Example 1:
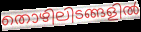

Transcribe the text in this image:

തൊഴിലിടങ്ങളിൽ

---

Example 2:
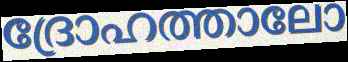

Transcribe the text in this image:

ദ്രോഹത്താലോ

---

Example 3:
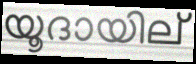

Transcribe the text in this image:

യൂദായില്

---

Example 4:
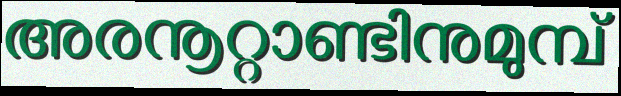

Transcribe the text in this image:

അരനൂറ്റാണ്ടിനുമുമ്പ്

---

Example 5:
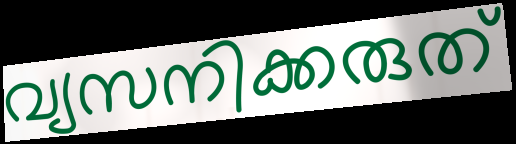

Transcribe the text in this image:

വ്യസനിക്കരുത്